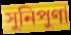
সুনিপুণা